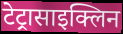
टेट्रासाइक्लिन